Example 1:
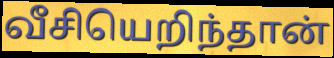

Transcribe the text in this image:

வீசியெறிந்தான்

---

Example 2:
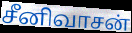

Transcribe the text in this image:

சீனிவாசன்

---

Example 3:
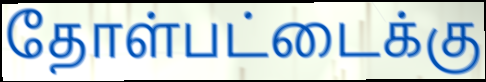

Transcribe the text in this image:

தோள்பட்டைக்கு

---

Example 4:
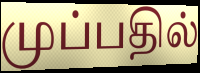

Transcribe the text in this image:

முப்பதில்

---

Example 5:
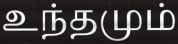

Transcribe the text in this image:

உந்தமும்